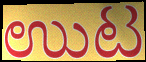
ಉುಟ